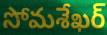
సోమశేఖర్